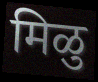
मिळु